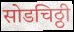
सोडचिठ्ठी